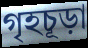
গৃহচূড়া